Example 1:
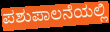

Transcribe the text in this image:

ಪಶುಪಾಲನೆಯಲ್ಲಿ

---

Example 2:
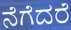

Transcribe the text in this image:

ನೆಗೆದರೆ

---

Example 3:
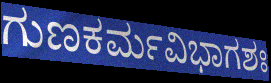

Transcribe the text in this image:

ಗುಣಕರ್ಮವಿಭಾಗಶಃ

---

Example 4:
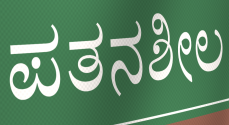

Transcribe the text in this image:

ಪತನಶೀಲ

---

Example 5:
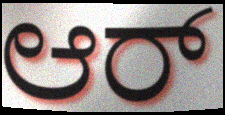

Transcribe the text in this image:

ಆರ್